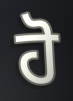
ਹੋ